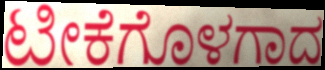
ಟೀಕೆಗೊಳಗಾದ